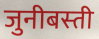
जुनीबस्ती